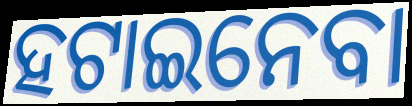
ହଟାଇନେବା